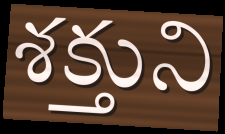
శక్తుని